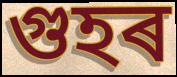
গুহৰ